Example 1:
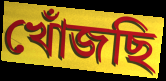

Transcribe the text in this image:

খোঁজছি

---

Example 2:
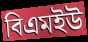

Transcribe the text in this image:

বিএমইউ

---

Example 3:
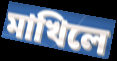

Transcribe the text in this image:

মাখিলে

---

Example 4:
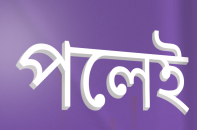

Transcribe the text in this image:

পলেই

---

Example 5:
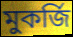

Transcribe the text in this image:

মুকর্জি